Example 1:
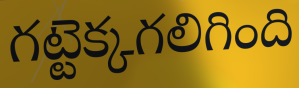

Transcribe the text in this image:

గట్టెక్కగలిగింది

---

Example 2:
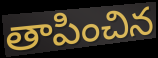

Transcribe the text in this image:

తాపించిన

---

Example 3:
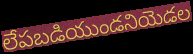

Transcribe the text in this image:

లేపబడియుండనియెడల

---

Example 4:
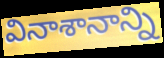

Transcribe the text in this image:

వినాశానాన్ని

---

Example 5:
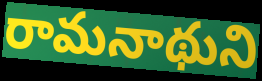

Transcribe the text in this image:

రామనాథుని